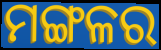
ମଙ୍ଗଳର